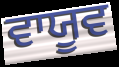
ਵਾਯੂਵ